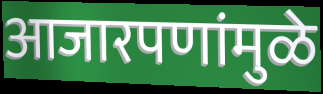
आजारपणांमुळे